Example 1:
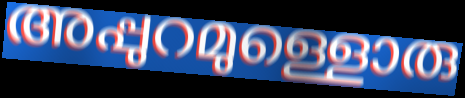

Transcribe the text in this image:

അപ്പുറമുള്ളൊരു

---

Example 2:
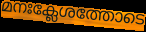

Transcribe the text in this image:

മനഃക്ലേശത്തോടെ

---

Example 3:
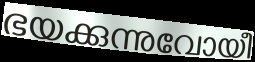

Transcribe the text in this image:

ഭയക്കുന്നുവോയീ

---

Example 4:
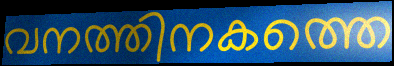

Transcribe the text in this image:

വനത്തിനകത്തെ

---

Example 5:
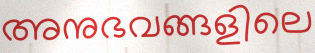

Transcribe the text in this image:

അനുഭവങ്ങളിലെ